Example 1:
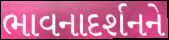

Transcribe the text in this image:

ભાવનાદર્શનને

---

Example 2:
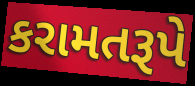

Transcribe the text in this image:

કરામતરૂપે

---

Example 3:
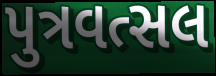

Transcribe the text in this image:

પુત્રવત્સલ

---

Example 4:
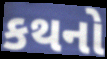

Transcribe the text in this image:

કથનો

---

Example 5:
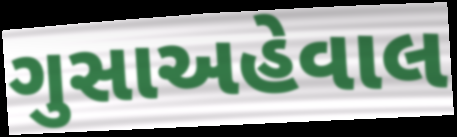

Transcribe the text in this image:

ગુસાઅહેવાલ